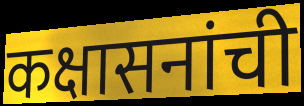
कक्षासनांची